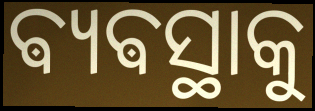
ଵ୍ୟଵସ୍ଥାକୁ